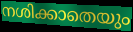
നശിക്കാതെയും